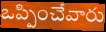
ఒప్పించేవారు